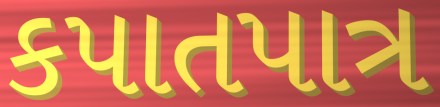
કપાતપાત્ર